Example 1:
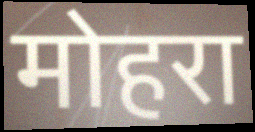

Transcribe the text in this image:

मोहरा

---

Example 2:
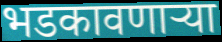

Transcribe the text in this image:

भडकावणाऱ्या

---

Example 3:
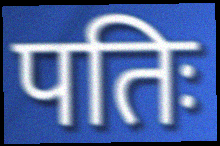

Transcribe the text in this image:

पतिः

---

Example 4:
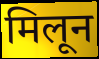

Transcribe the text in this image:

मिलून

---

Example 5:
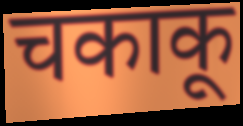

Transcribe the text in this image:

चकाकू